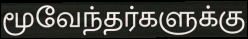
மூவேந்தர்களுக்கு